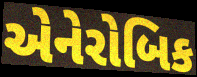
એનેરોબિક